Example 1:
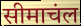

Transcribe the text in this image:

सीमाचंल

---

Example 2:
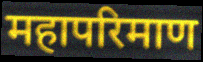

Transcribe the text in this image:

महापरिमाण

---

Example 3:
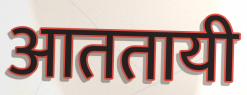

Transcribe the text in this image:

आततायी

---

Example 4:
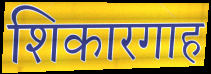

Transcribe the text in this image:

शिकारगाह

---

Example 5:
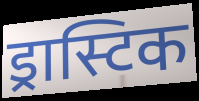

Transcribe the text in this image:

ड्रास्टिक